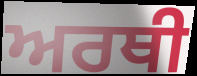
ਅਰਥੀ